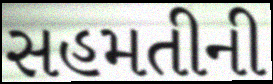
સહમતીની